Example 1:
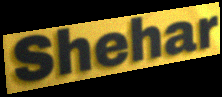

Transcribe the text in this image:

Shehar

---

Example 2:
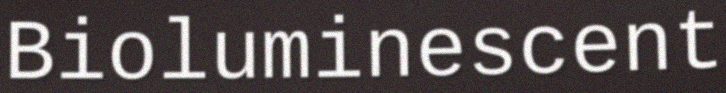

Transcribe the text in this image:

Bioluminescent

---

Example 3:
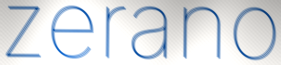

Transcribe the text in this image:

zerano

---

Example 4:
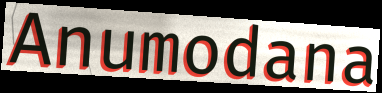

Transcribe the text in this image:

Anumodana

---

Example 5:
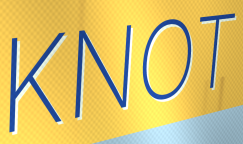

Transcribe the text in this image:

KNOT